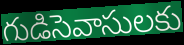
గుడిసెవాసులకు